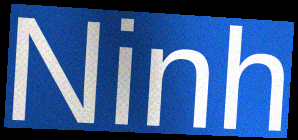
Ninh